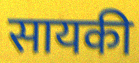
सायकी